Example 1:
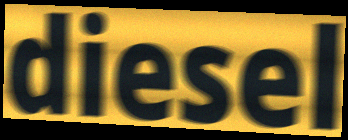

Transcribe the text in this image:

diesel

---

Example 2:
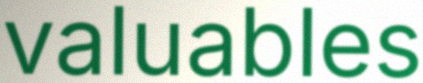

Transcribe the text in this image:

valuables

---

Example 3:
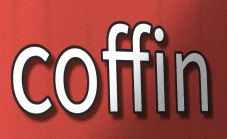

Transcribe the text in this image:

coffin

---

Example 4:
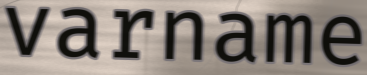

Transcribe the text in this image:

varname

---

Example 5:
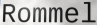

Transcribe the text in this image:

Rommel